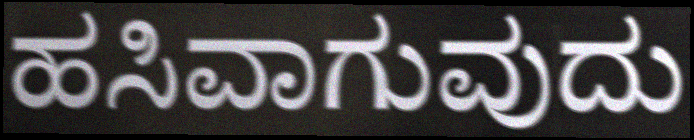
ಹಸಿವಾಗುವುದು